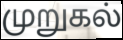
முறுகல்